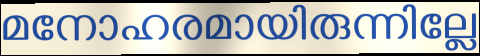
മനോഹരമായിരുന്നില്ലേ